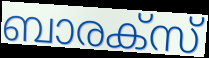
ബാരക്സ്